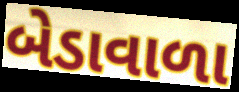
બેડાવાળા